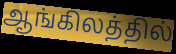
ஆங்கிலத்தில்